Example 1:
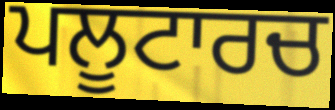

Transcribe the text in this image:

ਪਲੂਟਾਰਚ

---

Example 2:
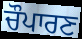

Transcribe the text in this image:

ਚੌਪਾਰਣ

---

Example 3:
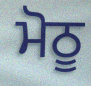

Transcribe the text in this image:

ਮੋਠੂ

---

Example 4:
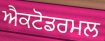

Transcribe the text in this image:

ਐਕਟੋਡਰਮਲ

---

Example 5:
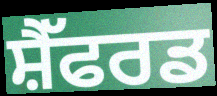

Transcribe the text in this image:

ਸ਼ੈੱਫਰਡ